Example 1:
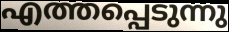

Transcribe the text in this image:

എത്തപ്പെടുന്നു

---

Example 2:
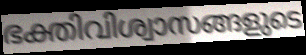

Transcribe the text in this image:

ഭക്തിവിശ്വാസങ്ങളുടെ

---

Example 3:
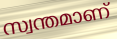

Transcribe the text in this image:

സ്വന്തമാണ്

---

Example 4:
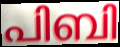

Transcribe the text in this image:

പിബി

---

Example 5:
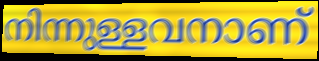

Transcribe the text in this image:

നിന്നുള്ളവനാണ്